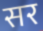
सर